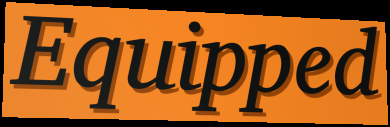
Equipped